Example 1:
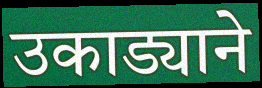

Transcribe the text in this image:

उकाड्याने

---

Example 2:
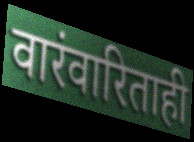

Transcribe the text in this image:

वारंवारिताही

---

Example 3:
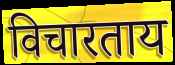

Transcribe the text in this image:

विचारताय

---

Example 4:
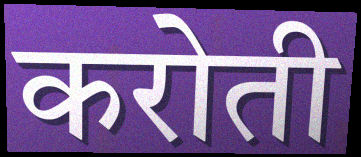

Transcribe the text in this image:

करोती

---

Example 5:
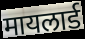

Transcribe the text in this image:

मायलार्ड